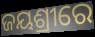
ଜୟଶ୍ରୀରେ